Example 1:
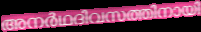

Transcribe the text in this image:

അനർഥദിവസത്തിനായി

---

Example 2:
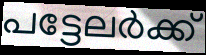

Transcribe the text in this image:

പട്ടേലർക്ക്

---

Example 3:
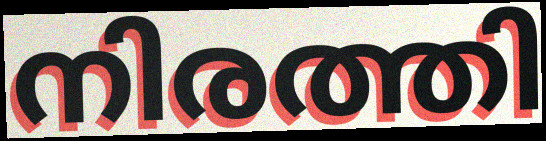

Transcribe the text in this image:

നിരത്തി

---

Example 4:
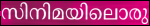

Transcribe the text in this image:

സിനിമയിലൊരു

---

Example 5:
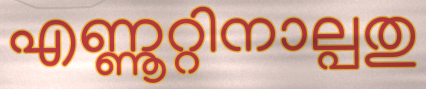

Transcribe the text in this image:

എണ്ണൂറ്റിനാല്പതു